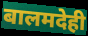
बालमदेही